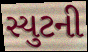
સ્યુટની